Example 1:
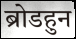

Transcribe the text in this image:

ब्रोडहुन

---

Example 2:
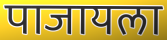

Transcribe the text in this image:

पाजायला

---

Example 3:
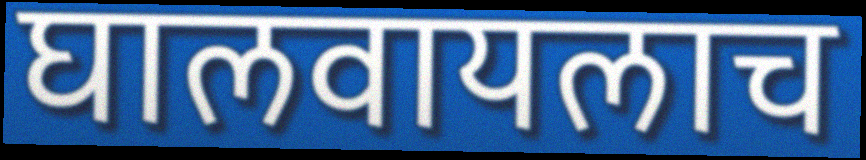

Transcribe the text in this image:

घालवायलाच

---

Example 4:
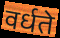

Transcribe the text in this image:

वर्धते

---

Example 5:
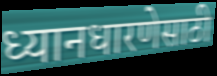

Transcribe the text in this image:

ध्यानधारणेसाठी